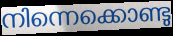
നിന്നെക്കൊണ്ടു